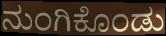
ನುಂಗಿಕೊಂಡು